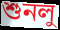
শুনলু